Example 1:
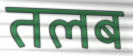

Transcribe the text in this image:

तलब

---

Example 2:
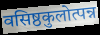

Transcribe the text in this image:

वसिष्ठकुलोत्पन्न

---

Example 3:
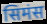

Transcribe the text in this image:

सिमंस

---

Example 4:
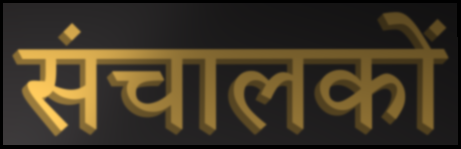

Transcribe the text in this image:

संचालकों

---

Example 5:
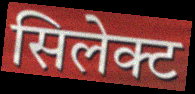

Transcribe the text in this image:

सिलेक्ट